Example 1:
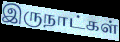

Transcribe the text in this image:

இருநாட்கள்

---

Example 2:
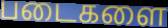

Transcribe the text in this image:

படைகளை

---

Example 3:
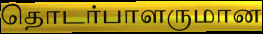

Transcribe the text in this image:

தொடர்பாளருமான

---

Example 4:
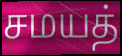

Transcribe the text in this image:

சமயத்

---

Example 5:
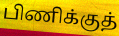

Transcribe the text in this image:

பிணிக்குத்